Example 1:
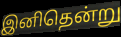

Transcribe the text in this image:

இனிதென்று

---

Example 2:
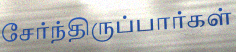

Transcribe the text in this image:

சேர்ந்திருப்பார்கள்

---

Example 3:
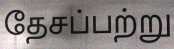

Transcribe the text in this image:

தேசப்பற்று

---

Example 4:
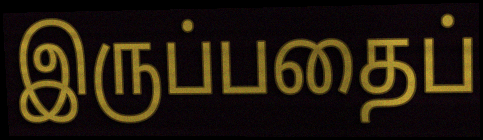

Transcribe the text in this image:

இருப்பதைப்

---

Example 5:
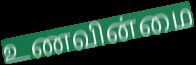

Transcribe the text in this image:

உணவின்மை